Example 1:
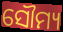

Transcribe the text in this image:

ସୌମ୍ଯ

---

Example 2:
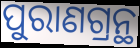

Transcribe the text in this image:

ପୁରାଣଗ୍ରନ୍ଥ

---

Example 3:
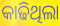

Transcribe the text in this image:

କାଢିଥିଲା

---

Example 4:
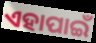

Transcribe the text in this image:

ଏହାପାଇଁ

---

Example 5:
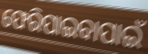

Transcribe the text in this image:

ଫେରିପାଇବାପାଇଁ